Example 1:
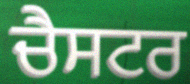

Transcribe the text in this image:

ਚੈਸਟਰ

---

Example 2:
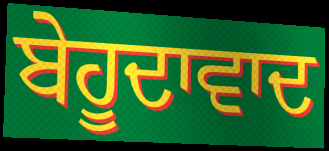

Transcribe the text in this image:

ਬੇਹੂਦਾਵਾਦ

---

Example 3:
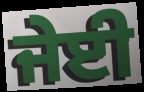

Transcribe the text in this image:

ਜੇਈ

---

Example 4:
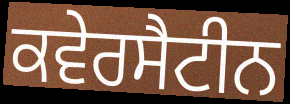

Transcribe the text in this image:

ਕਵੇਰਸੈਟੀਨ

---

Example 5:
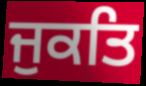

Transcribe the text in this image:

ਜੁਕਤਿ